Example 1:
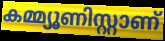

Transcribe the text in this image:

കമ്മ്യൂണിസ്റ്റാണ്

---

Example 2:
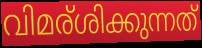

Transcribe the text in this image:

വിമര്ശിക്കുന്നത്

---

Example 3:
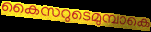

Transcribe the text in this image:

കൈസറുടെമുമ്പാകെ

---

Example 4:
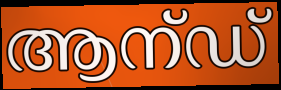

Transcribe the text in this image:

ആന്ഡ്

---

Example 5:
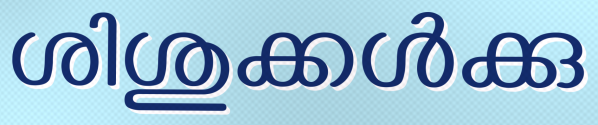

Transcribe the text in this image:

ശിശുക്കൾക്കു